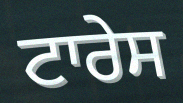
ਟਾਰੇਸ